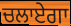
ਚਲਾਏਗਾ